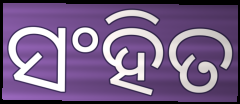
ସଂହିତ